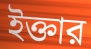
ইক্তার